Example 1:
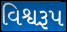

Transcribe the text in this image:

વિશ્વરૂપ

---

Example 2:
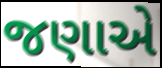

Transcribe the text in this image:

જણાએ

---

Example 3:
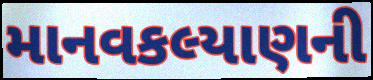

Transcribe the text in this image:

માનવકલ્યાણની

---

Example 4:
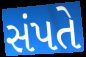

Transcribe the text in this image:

સંપતે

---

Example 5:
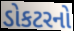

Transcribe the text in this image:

ડોકટરનો